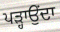
ਪੜ੍ਹਾਉਂਦਾ